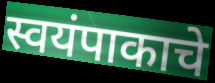
स्वयंपाकाचे